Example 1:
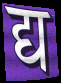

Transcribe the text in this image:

द्य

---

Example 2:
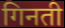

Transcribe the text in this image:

गिनती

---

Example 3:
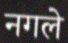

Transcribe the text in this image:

नगले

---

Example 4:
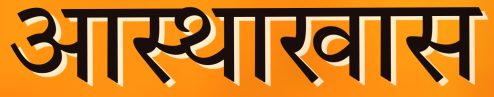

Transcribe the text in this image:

आस्थाखास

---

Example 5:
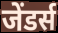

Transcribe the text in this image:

जेंडर्स